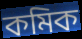
কমিক